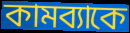
কামব্যাকে